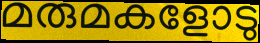
മരുമകളോടു